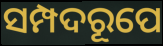
ସମ୍ପଦରୂପେ